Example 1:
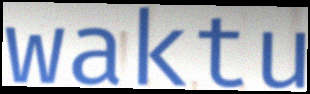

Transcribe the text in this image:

waktu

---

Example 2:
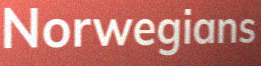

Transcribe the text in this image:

Norwegians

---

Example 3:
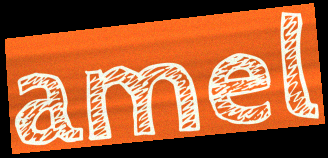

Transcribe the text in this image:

amel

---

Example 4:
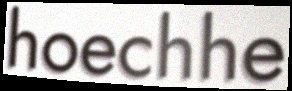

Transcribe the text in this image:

hoechhe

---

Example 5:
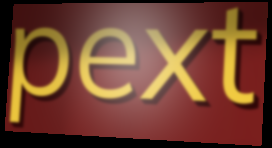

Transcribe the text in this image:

pext